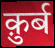
क़ुर्ब